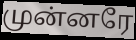
முன்னரே